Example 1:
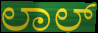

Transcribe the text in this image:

ಲಾಲ್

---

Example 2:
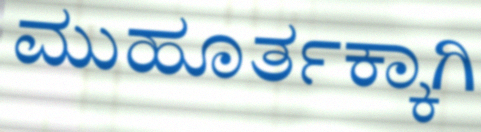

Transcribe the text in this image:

ಮುಹೂರ್ತಕ್ಕಾಗಿ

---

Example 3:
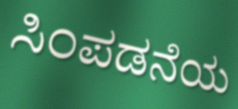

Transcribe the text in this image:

ಸಿಂಪಡನೆಯ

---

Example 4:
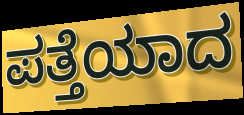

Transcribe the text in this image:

ಪತ್ತೆಯಾದ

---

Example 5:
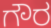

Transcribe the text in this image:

ಗೌರ